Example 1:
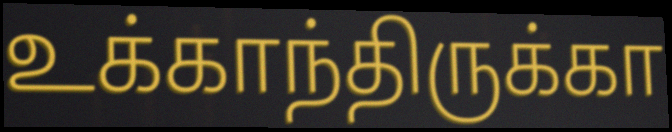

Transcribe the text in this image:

உக்காந்திருக்கா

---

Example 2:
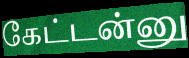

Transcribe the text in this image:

கேட்டன்னு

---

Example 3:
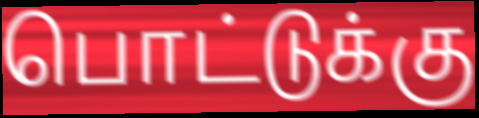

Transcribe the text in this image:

பொட்டுக்கு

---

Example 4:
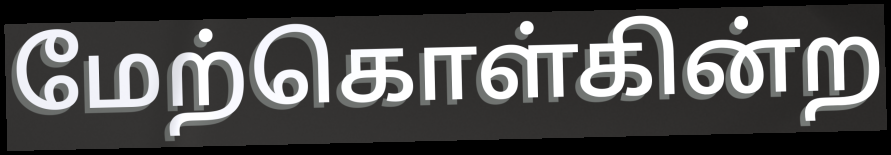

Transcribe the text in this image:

மேற்கொள்கின்ற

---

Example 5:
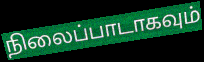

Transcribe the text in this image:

நிலைப்பாடாகவும்